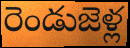
రెండుజెళ్ల